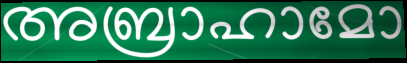
അബ്രാഹാമോ